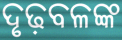
ଦୃଢ଼ବଳଙ୍କ